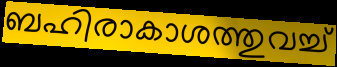
ബഹിരാകാശത്തുവച്ച്